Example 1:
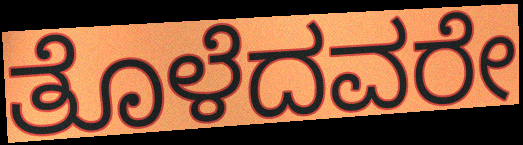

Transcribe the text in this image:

ತೊಳೆದವರೇ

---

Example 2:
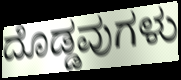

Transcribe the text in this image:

ದೊಡ್ಡವುಗಳು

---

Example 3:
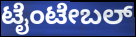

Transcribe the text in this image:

ಟೈಂಟೇಬಲ್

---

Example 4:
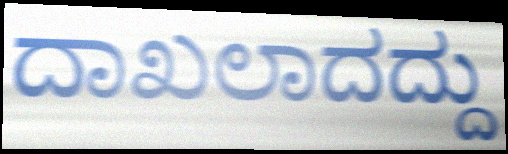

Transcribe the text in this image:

ದಾಖಲಾದದ್ದು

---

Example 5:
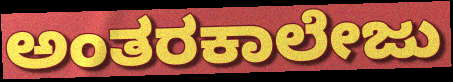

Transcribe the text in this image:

ಅಂತರಕಾಲೇಜು